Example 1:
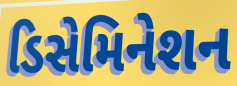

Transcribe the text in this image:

ડિસેમિનેશન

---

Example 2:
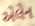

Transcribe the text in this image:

એલેન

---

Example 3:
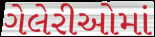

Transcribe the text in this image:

ગેલેરીઓમાં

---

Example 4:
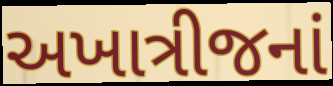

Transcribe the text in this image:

અખાત્રીજનાં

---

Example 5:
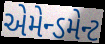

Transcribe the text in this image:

એમેન્ડમેન્ટ